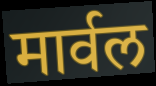
मार्वल